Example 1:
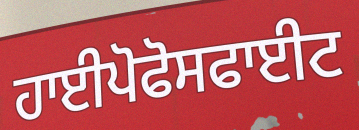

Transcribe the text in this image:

ਹਾਈਪੋਫੋਸਫਾਈਟ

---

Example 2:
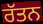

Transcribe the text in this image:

ਰੱਤਨ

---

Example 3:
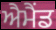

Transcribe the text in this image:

ਐਮੈਂਡ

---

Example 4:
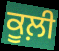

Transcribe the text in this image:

ਕੂਲ਼ੀ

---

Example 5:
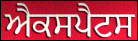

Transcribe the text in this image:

ਐਕਸਪੈਟਸ